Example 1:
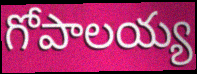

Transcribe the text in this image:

గోపాలయ్య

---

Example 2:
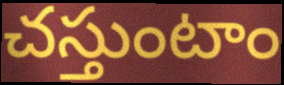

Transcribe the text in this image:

చస్తుంటాం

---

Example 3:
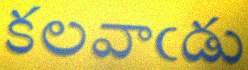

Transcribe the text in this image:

కలవాఁడు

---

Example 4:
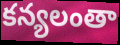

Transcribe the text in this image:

కన్యలంతా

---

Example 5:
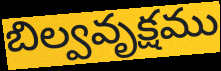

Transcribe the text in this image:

బిల్వవృక్షము